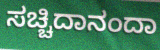
ಸಚ್ಚಿದಾನಂದಾ